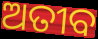
ଅତୀବ